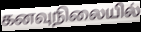
கனவுநிலையில்